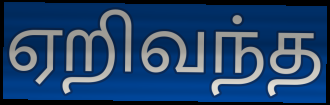
ஏறிவந்த